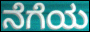
ನೆಗೆಯ